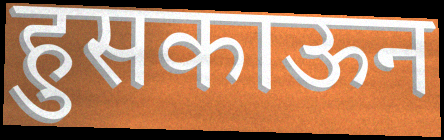
हुसकाऊन